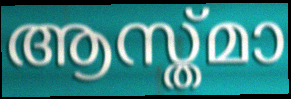
ആസ്ത്മാ